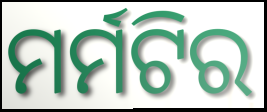
ମର୍ମଟିର